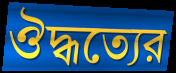
ঔদ্ধত্যের